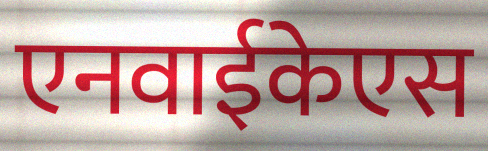
एनवाईकेएस